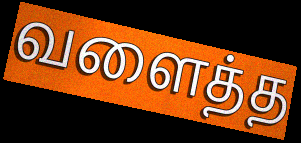
வளைத்த